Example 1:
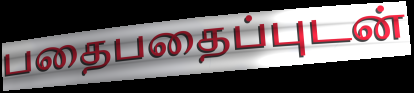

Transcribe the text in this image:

பதைபதைப்புடன்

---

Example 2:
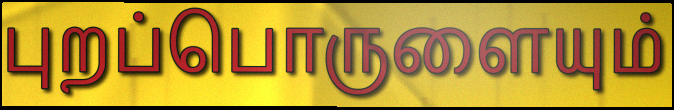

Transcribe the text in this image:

புறப்பொருளையும்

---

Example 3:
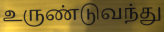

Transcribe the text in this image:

உருண்டுவந்து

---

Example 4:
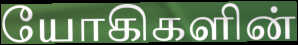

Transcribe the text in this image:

யோகிகளின்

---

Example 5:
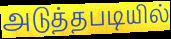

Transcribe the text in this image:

அடுத்தபடியில்